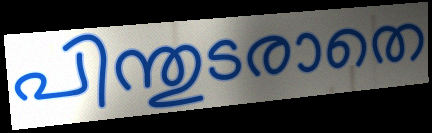
പിന്തുടരാതെ